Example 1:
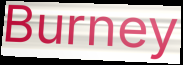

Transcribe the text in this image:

Burney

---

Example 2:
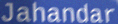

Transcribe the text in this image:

Jahandar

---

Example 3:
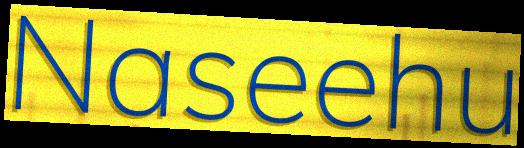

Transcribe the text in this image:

Naseehu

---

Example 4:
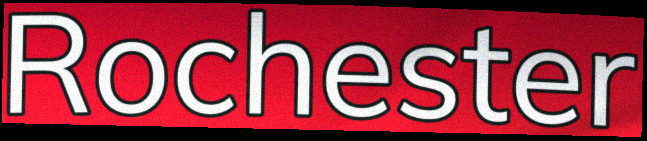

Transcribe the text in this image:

Rochester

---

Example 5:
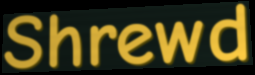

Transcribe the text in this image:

Shrewd